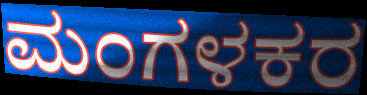
ಮಂಗಳಕರ